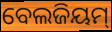
ବେଲଜିୟମ୍